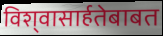
विश्वासार्हतेबाबत